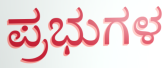
ಪ್ರಭುಗಳ